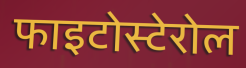
फाइटोस्टेरोल